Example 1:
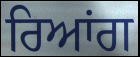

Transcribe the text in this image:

ਰਿਆਂਗ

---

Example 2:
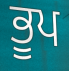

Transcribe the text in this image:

ਭੂਪ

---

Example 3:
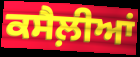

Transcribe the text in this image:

ਕਸੈਲ਼ੀਆਂ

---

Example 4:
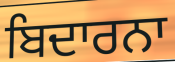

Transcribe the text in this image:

ਬਿਦਾਰਨਾ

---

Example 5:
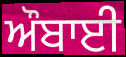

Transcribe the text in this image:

ਔਬਾਈ